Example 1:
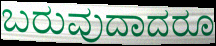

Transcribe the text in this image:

ಬರುವುದಾದರೂ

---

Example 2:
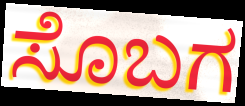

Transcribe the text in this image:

ಸೊಬಗ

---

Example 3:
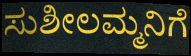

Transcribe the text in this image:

ಸುಶೀಲಮ್ಮನಿಗೆ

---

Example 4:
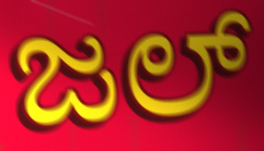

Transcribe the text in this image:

ಜಲ್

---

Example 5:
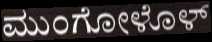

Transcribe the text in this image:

ಮುಂಗೋಳೊಳ್